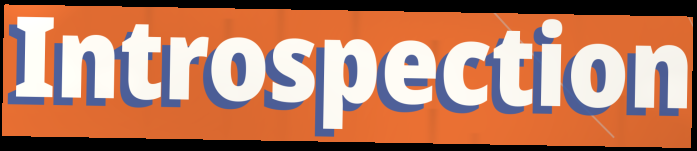
Introspection